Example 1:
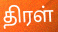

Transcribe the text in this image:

திரள்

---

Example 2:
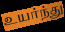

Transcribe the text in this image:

உயர்ந்து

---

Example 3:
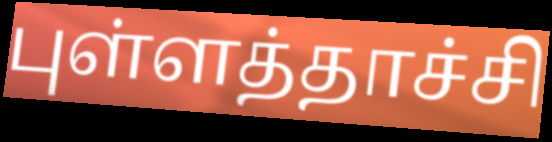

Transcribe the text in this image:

புள்ளத்தாச்சி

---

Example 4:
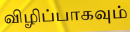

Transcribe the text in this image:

விழிப்பாகவும்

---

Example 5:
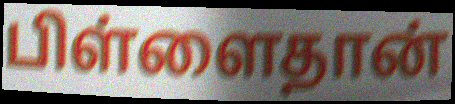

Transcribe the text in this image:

பிள்ளைதான்